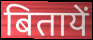
बितायें